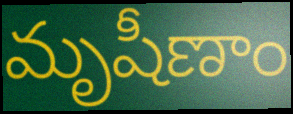
మృషీణాం